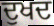
ਦੁਖਦ